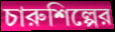
চারুশিল্পের